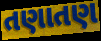
તણાતણ